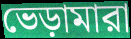
ভেড়ামারা